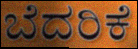
ಬೆದರಿಕೆ